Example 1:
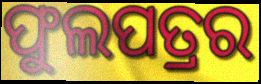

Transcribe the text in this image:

ଫୁଲପତ୍ରର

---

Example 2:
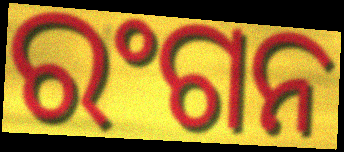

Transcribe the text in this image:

ରଂଗନ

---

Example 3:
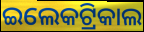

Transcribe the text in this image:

ଇଲେକଟ୍ରିକାଲ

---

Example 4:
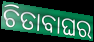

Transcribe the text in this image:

ଚିତାବାଘର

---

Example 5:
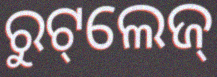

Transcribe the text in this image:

ରୁଟ୍‌ଲେଜ୍